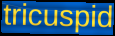
tricuspid